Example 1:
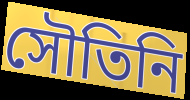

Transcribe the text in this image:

সৌতিনি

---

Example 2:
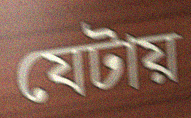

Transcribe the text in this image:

যেটায়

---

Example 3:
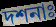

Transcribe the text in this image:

দশনাঃ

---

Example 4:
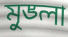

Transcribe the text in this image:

মুঙ্লা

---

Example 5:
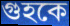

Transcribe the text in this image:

গুহকে